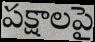
పక్షాలపై